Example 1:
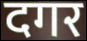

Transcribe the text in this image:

दगर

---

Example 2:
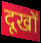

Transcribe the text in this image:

दूखों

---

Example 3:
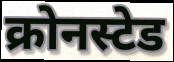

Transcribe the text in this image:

क्रोनस्टेड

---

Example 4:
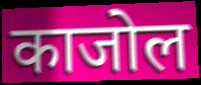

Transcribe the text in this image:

काजोल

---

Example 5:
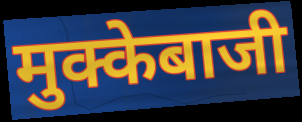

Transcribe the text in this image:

मुक्केबाजी